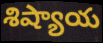
శిష్యాయ